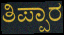
ತಿಪ್ಪಾರ